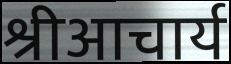
श्रीआचार्य